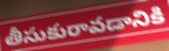
తీసుకురావడానికి